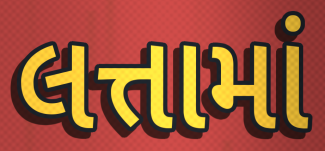
લત્તામાં